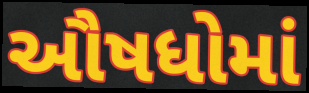
ઔષધોમાં